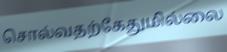
சொல்வதற்கேதுமில்லை